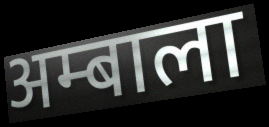
अम्बाला